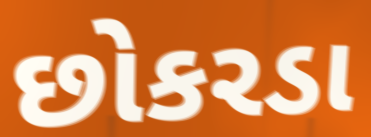
છોકરડા